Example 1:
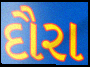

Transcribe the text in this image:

દૌરા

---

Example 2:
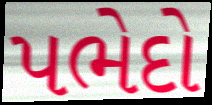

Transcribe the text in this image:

પભેદો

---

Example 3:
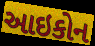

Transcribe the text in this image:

આઇકોન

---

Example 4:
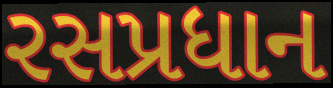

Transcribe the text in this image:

રસપ્રધાન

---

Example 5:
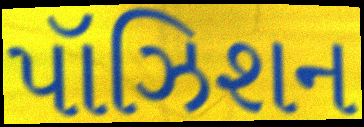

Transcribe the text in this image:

પૉઝિશન